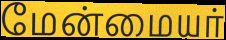
மேன்மையர்